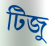
টিজু